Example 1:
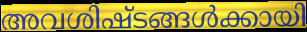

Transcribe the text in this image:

അവശിഷ്ടങ്ങൾക്കായി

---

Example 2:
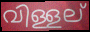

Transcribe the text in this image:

വിള്ളല്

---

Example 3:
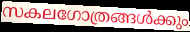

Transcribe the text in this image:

സകലഗോത്രങ്ങൾക്കും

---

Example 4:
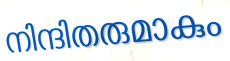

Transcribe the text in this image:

നിന്ദിതരുമാകും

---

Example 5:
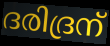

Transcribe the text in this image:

ദരിദ്രന്